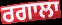
ਰਗਾਲਾ